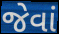
જેવાં